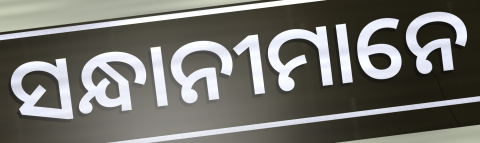
ସନ୍ଧାନୀମାନେ